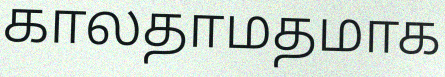
காலதாமதமாக